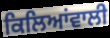
ਕਿਲਿਆਂਵਾਲੀ